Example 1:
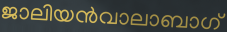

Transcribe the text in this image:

ജാലിയൻവാലാബാഗ്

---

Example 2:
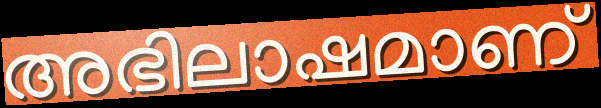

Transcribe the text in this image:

അഭിലാഷമാണ്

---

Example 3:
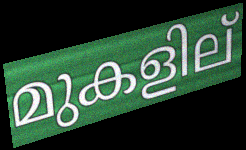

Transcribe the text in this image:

മുകളില്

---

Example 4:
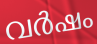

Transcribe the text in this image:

വർഷം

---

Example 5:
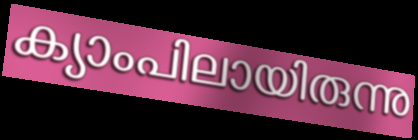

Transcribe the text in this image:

ക്യാംപിലായിരുന്നു